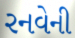
રનવેની